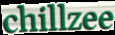
chillzee